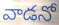
వాడనో